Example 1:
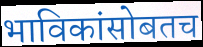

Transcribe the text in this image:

भाविकांसोबतच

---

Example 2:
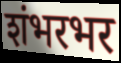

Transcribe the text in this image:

शंभरभर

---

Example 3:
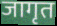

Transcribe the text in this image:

जागृत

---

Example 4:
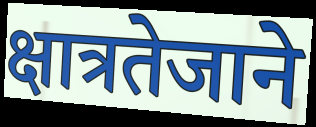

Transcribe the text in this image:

क्षात्रतेजाने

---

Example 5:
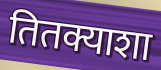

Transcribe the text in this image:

तितक्याशा